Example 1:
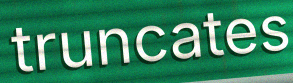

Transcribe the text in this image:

truncates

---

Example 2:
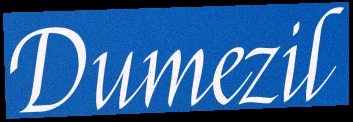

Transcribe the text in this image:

Dumezil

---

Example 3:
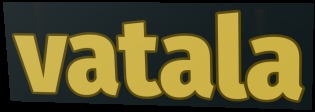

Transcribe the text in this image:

vatala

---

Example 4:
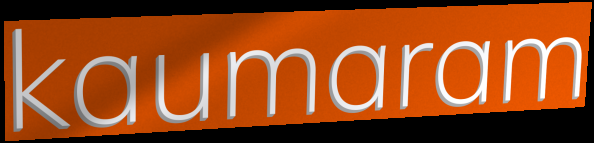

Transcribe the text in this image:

kaumaram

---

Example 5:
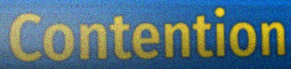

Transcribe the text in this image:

Contention